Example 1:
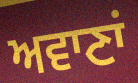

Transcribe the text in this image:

ਅਵਾਣਾਂ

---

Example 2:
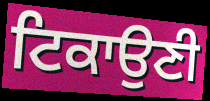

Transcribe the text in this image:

ਟਿਕਾਉਣੀ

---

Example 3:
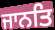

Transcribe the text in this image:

ਜਾਨਤਿ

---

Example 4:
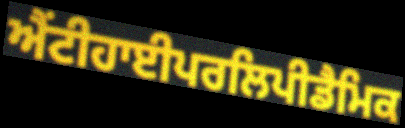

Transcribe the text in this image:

ਐਂਟੀਹਾਈਪਰਲਿਪੀਡੈਮਿਕ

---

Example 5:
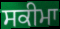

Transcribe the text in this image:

ਸਕੀਮਾ